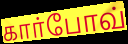
கார்போவ்